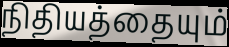
நிதியத்தையும்